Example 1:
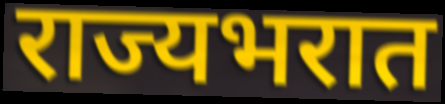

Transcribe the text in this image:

राज्यभरात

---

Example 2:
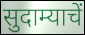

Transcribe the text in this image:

सुदाम्याचें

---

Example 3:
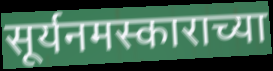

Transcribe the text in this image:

सूर्यनमस्काराच्या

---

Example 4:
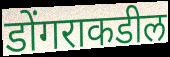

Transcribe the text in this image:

डोंगराकडील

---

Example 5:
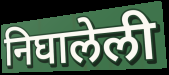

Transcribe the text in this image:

निघालेली